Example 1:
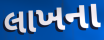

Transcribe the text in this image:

લાખના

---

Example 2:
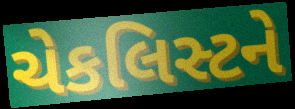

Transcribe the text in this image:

ચેકલિસ્ટને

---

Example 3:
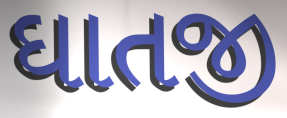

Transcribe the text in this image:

ઘાતજી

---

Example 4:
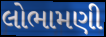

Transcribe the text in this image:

લોભામણી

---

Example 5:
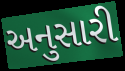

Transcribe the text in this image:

અનુસારી